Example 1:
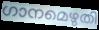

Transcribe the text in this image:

ഗാനമെഴുതി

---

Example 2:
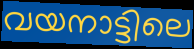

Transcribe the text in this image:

വയനാട്ടിലെ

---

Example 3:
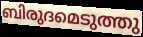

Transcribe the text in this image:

ബിരുദമെടുത്തു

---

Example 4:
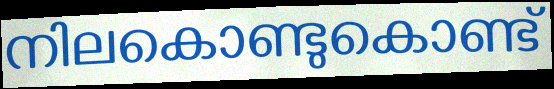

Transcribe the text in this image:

നിലകൊണ്ടുകൊണ്ട്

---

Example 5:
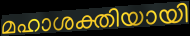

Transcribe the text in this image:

മഹാശക്തിയായി